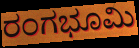
ರಂಗಭೂಮಿ